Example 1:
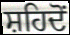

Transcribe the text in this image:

ਸ਼ਹਿਦੋਂ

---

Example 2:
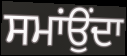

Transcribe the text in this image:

ਸਮਾਂਉਂਦਾ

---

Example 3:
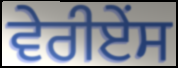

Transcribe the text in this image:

ਵੇਰੀਏਂਸ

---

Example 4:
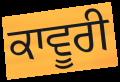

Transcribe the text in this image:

ਕਾਵੂਰੀ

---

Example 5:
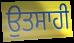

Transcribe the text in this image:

ਉਤਸਾਹੀ